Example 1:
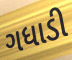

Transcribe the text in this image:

ગધાડી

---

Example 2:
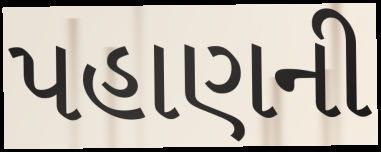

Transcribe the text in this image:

પહાણની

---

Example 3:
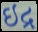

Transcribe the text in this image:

ઇદ્ર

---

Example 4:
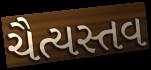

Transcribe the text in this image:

ચૈત્યસ્તવ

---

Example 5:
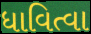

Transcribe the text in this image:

ધાવિત્વા